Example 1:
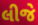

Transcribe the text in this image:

લીજે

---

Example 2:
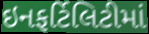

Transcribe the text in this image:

ઇનફર્ટિલિટીમાં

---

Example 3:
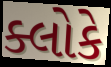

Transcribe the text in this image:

ક્લોકે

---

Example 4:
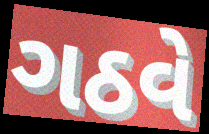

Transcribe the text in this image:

ગઠવે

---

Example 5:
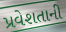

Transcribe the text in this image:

પ્રવેશતાની